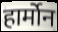
हार्मोन